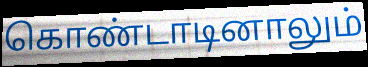
கொண்டாடினாலும்